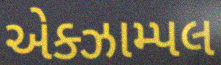
એક્ઝામ્પલ